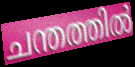
ചന്തത്തിൽ